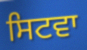
ਸਿਟਵਾ